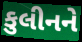
કુલીનને